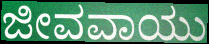
ಜೀವವಾಯು